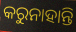
କରୁନାହାନ୍ତି